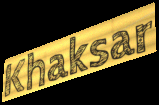
Khaksar